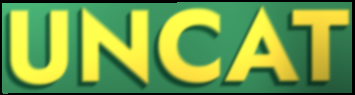
UNCAT